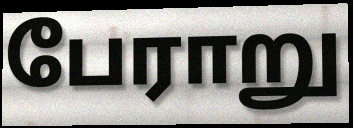
பேராறு